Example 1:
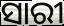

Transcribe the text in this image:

ସାରୀ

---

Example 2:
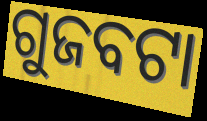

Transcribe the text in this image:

ଗୁଜବଟା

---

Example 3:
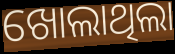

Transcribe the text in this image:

ଖୋଲାଥିଲା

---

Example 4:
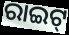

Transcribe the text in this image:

ରାଇଟ୍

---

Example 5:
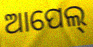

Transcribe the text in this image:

ଆପେଲ୍